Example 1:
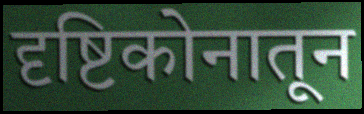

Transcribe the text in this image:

दृष्टिकोनातून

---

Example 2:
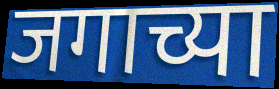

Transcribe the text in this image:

जगाच्या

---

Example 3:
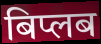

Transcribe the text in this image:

बिप्लब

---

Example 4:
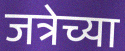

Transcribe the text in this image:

जत्रेच्या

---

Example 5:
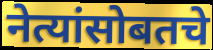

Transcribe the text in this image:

नेत्यांसोबतचे